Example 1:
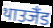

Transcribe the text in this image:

थाउजैंड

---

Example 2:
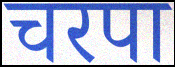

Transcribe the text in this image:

चरपा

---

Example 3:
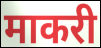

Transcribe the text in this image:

माकरी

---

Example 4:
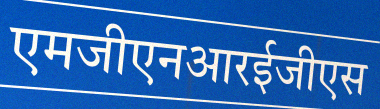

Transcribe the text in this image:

एमजीएनआरईजीएस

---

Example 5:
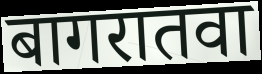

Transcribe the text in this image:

बागरातवा